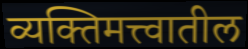
व्यक्तिमत्त्वातील